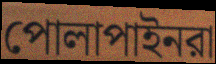
পোলাপাইনরা